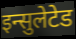
इन्सुलेटेड